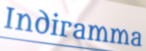
Indiramma